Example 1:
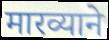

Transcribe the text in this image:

मारव्याने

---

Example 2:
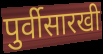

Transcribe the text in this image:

पुर्वीसारखी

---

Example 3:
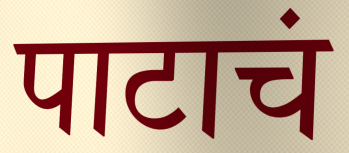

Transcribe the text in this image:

पाटाचं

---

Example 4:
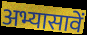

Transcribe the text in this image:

अभ्यासावें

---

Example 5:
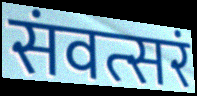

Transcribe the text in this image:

संवत्सरं